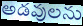
అడవులను